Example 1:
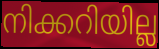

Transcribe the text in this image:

നിക്കറിയില്ല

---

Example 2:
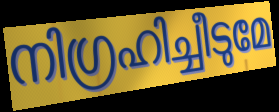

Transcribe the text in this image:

നിഗ്രഹിച്ചീടുമേ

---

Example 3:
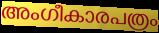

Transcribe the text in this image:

അംഗീകാരപത്രം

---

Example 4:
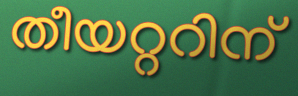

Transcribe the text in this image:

തീയറ്ററിന്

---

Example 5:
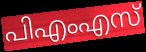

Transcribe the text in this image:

പിഎംഎസ്